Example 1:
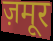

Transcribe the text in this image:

ज़मूर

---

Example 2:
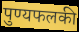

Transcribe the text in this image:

पुण्यफलकी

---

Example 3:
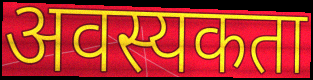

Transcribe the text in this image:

अवस्यकता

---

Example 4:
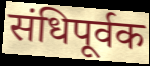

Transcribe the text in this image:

संधिपूर्वक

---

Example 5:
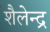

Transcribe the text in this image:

शैलेन्द्र